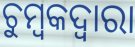
ଚୁମ୍ବକଦ୍ବାରା